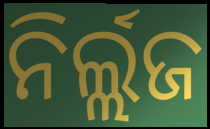
ନିର୍ଲ୍ଲଜ